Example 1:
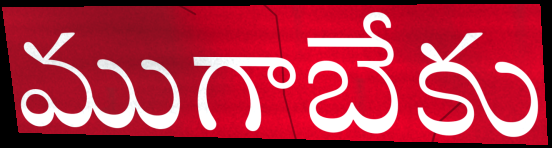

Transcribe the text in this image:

ముగాబేకు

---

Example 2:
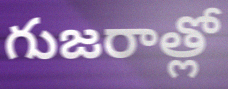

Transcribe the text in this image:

గుజరాత్లో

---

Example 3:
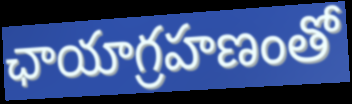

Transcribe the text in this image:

ఛాయాగ్రహణంతో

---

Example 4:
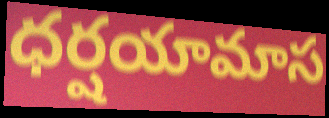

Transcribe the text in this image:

ధర్షయామాస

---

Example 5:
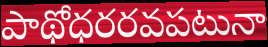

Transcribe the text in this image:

పాథోధరరవపటునా